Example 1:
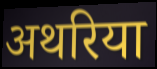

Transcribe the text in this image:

अथरिया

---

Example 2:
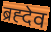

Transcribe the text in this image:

ब्रह्देव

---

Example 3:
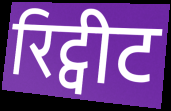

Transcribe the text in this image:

रिट्वीट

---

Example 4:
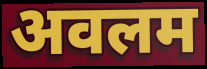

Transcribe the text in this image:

अवलम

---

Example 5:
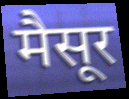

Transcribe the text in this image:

मैसूर